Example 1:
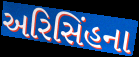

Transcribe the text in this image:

અરિસિંહના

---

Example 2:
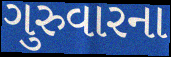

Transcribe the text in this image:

ગુરુવારના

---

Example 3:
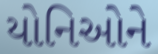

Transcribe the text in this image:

યોનિઓને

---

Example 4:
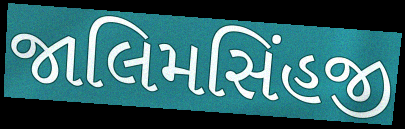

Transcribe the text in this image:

જાલિમસિંહજી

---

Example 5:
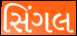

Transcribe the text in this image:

સિંગલ